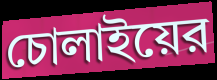
চোলাইয়ের